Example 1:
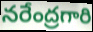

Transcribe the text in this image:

నరేంద్రగారి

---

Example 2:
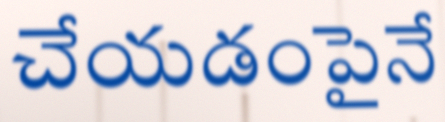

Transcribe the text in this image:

చేయడంపైనే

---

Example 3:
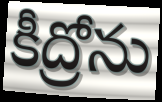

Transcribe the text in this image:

కీద్రోను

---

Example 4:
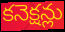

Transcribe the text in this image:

కనెక్షన్లు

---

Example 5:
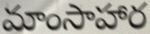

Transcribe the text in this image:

మాంసాహార